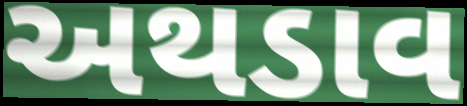
અથડાવ